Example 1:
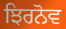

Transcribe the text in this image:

ਝਿਰਨੋਵ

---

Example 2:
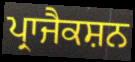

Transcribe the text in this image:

ਪ੍ਰਾਜੈਕਸ਼ਨ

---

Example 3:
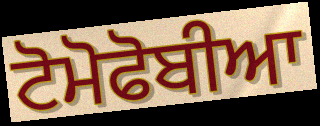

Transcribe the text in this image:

ਟੋਮੋਫੋਬੀਆ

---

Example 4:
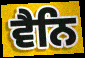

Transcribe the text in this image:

ਵੈਨਿ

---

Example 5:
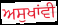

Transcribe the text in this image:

ਅਸੁਖਾਂਵੀ